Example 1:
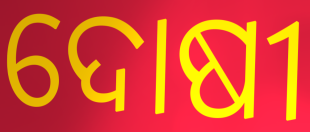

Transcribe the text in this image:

ଦୋଷୀ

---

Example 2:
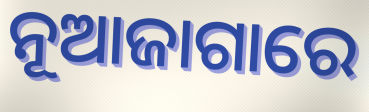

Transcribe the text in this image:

ନୂଆଜାଗାରେ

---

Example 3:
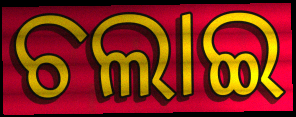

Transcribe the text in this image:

ଚଲାଇ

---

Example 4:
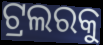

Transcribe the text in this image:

ଟ୍ରଲରକୁ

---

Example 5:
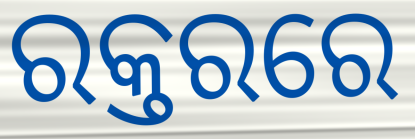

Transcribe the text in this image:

ରକ୍ତରରେ